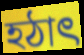
হঠাৎ